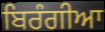
ਬਿਰੰਗੀਆ